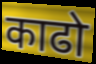
काढो